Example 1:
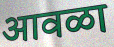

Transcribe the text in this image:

आवळा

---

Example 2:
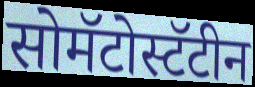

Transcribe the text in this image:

सोमॅटोस्टॅटीन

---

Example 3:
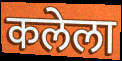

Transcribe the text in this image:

कलेला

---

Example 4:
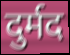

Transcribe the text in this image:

दुर्मद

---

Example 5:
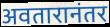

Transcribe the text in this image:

अवतारानंतर